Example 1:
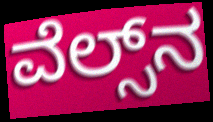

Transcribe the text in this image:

ವೆಲ್ಸ್‌ನ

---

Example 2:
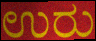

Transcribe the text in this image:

ಉರು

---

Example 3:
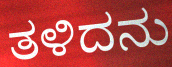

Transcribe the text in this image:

ತಳಿದನು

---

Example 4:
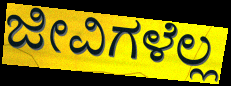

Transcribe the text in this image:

ಜೀವಿಗಳೆಲ್ಲ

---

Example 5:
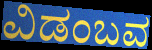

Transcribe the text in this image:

ವಿಡಂಬವ